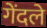
गेंदले